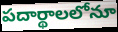
పదార్థాలలోనూ